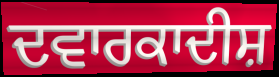
ਦਵਾਰਕਾਦੀਸ਼